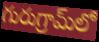
గురుగ్రామ్‌లో